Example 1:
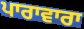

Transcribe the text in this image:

ਪਾਰਾਵਾਰਾ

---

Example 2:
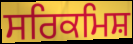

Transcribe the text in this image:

ਸਰਿਕਮਿਸ਼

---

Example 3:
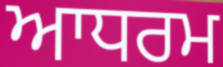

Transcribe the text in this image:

ਆਧਰਮ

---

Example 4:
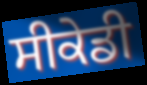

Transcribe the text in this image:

ਸੀਕੇਡੀ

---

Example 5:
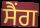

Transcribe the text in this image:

ਸੈਂਗ